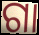
ଗା